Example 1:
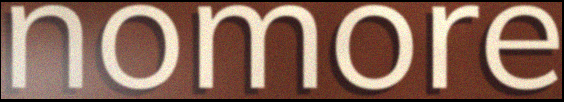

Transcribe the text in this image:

nomore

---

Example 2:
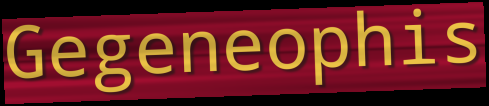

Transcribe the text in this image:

Gegeneophis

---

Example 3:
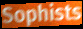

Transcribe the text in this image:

Sophists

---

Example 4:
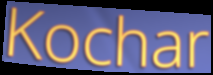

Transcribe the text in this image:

Kochar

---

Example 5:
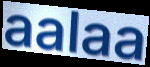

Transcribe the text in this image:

aalaa